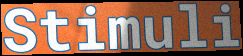
Stimuli